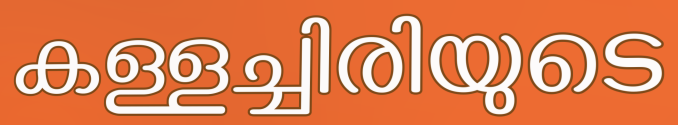
കള്ളച്ചിരിയുടെ